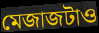
মেজাজটাও